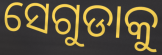
ସେଗୁଡାକୁ